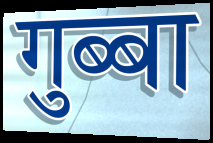
गुब्बा